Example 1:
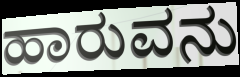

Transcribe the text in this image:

ಹಾರುವನು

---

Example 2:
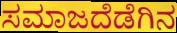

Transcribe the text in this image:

ಸಮಾಜದೆಡೆಗಿನ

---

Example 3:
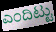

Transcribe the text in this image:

ಎಂದಿಟ್ಟು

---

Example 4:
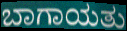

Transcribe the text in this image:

ಬಾಗಾಯತು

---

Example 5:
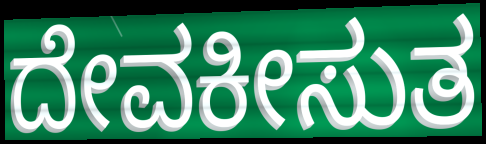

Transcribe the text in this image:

ದೇವಕೀಸುತ